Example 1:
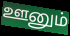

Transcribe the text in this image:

ஊனும்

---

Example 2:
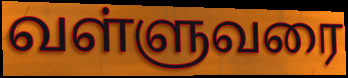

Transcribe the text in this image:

வள்ளுவரை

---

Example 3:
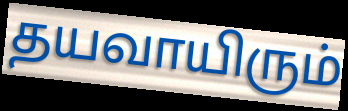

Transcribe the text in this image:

தயவாயிரும்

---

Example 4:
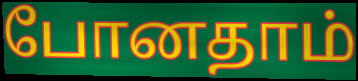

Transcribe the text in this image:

போனதாம்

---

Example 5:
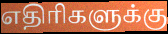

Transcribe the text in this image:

எதிரிகளுக்கு